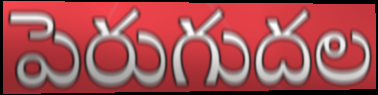
పెరుగుదల